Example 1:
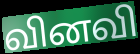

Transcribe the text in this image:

வினவி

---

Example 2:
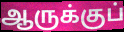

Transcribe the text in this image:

ஆருக்குப்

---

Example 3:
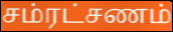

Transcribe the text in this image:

சம்ரட்சணம்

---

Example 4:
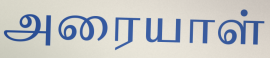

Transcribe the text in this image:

அரையாள்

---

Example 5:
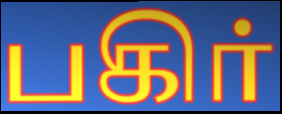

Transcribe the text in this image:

பகிர்